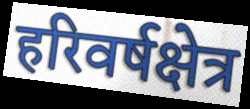
हरिवर्षक्षेत्र